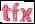
tfx